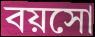
বয়সো